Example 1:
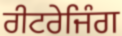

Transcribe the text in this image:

ਰੀਟਰੇਜਿੰਗ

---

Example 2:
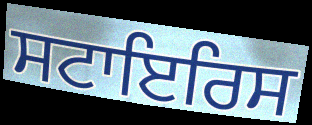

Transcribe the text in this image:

ਸਟਾਇਰਿਸ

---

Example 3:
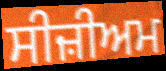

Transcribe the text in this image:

ਸੀਜ਼ੀਅਮ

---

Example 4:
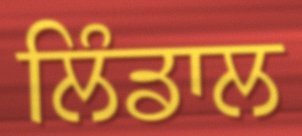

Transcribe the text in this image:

ਲਿੰਡਾਲ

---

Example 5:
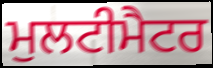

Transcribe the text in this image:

ਮੁਲਟੀਮੈਟਰ